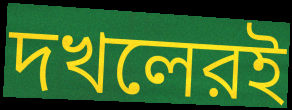
দখলেরই